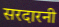
सरदारनी